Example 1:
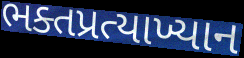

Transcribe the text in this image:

ભક્તપ્રત્યાખ્યાન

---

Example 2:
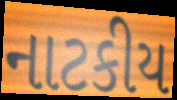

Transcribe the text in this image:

નાટકીય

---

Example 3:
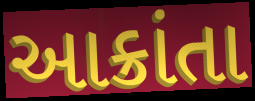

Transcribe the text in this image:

આક્રાંતા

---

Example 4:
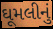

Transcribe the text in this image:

ઘૂમલીનું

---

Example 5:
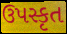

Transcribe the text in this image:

ઉપસ્કૃત